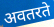
अवतरते